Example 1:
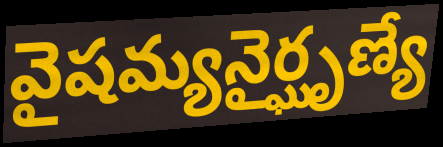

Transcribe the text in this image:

వైషమ్యనైర్ఘృణ్యే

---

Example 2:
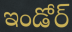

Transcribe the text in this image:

ఇండోర్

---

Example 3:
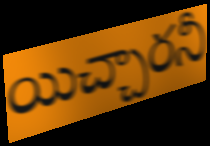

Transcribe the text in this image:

యిచ్చారనీ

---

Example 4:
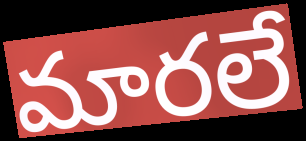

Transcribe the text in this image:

మారలే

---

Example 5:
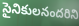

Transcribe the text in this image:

సైనికులనందరిని